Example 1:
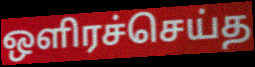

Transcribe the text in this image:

ஒளிரச்செய்த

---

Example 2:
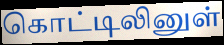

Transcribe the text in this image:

கொட்டிலினுள்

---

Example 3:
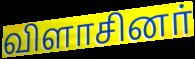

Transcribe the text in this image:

விளாசினர்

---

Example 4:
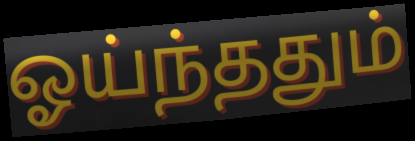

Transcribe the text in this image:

ஓய்ந்ததும்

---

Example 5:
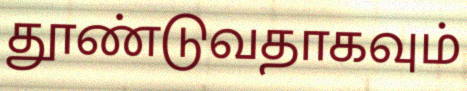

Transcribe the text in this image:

தூண்டுவதாகவும்